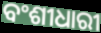
ବଂଶୀଧାରୀ